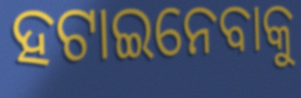
ହଟାଇନେବାକୁ